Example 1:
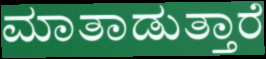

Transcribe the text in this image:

ಮಾತಾಡುತ್ತಾರೆ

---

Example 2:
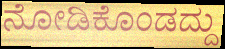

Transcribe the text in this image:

ನೋಡಿಕೊಂಡದ್ದು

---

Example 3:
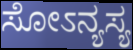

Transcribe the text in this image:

ಸೋಽನ್ಯಸ್ಯ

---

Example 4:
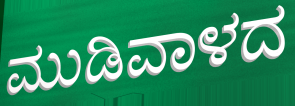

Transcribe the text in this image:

ಮುಡಿವಾಳದ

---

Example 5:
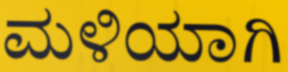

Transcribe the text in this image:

ಮಳಿಯಾಗಿ